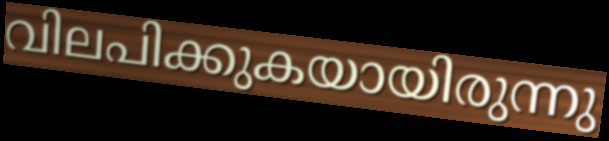
വിലപിക്കുകയായിരുന്നു